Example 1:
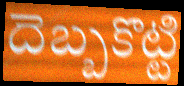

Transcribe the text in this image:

దెబ్బకొట్టి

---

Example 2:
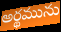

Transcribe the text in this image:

అర్థమును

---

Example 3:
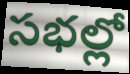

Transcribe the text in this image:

సభల్లో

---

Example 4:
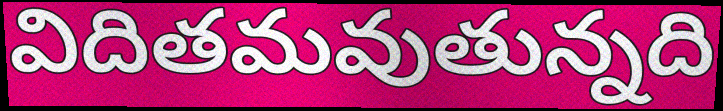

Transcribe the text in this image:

విదితమవుతున్నది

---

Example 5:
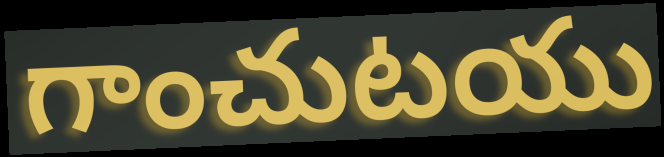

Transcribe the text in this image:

గాంచుటయు